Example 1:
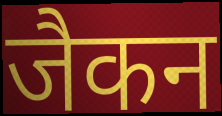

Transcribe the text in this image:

जैकन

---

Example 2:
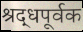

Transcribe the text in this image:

श्रद्धपूर्वक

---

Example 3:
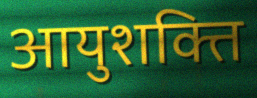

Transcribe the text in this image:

आयुशक्ति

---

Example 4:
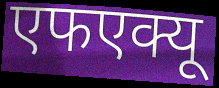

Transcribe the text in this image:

एफएक्यू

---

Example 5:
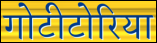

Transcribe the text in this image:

गोटीटोरिया